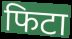
फिटा